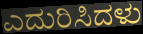
ಎದುರಿಸಿದಳು